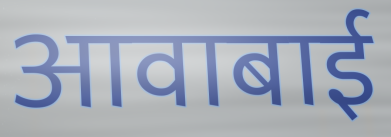
आवाबाई